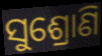
ସୁଶ୍ରୋଣି